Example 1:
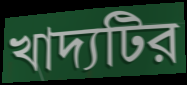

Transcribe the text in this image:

খাদ্যটির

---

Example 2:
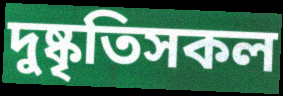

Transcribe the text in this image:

দুষ্কৃতিসকল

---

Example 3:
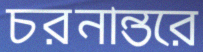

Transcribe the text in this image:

চরনান্তরে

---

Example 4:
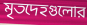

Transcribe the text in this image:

মৃতদেহগুলোর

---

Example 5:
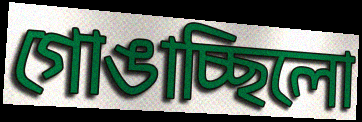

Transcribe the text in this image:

গোঙাচ্ছিলো